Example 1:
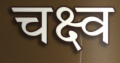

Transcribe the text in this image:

चक्ष्व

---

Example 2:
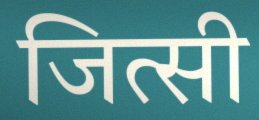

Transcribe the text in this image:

जित्सी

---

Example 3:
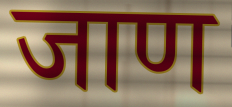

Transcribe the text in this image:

जाण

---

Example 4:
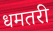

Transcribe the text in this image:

धमतरी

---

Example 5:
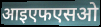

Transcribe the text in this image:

आइएफएसओ